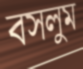
বসলুম